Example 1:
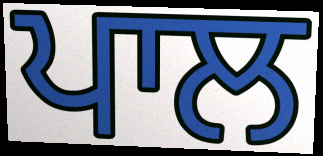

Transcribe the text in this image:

ਪਾਲ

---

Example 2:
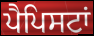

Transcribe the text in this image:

ਪੈਪਿਸਟਾਂ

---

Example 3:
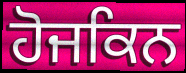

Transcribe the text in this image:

ਹੋਜਕਿਨ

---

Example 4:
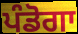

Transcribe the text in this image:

ਪੰਡੋਗਾ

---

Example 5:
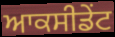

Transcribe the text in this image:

ਆਕਸੀਡੇਂਟ